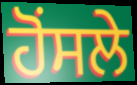
ਹੋਂਸਲੇ